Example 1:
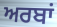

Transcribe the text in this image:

ਅਰਬਾਂ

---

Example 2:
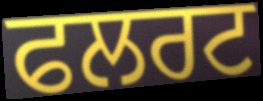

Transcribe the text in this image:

ਫਲਰਟ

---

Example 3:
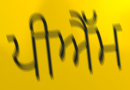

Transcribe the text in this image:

ਪੀਐੱਮ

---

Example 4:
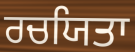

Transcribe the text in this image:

ਰਚਯਿਤਾ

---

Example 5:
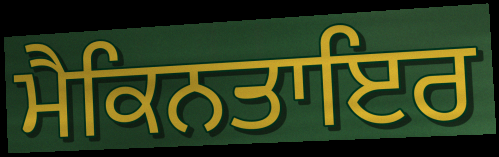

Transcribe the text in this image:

ਮੈਕਿਨਤਾਇਰ